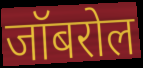
जॉबरोल